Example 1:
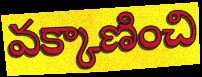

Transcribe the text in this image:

వక్కాణించి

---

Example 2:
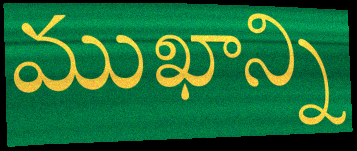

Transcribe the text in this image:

ముఖాన్ని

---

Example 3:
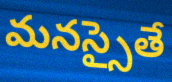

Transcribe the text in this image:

మనస్సైతే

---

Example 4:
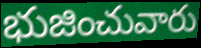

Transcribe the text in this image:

భుజించువారు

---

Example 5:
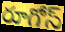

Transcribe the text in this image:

రూగోస్